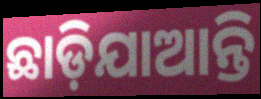
ଛାଡ଼ିଯାଆନ୍ତି